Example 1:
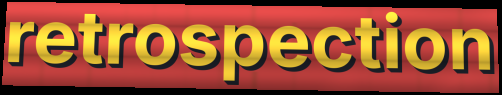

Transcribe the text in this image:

retrospection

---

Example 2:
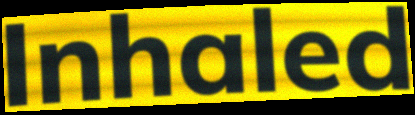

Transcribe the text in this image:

Inhaled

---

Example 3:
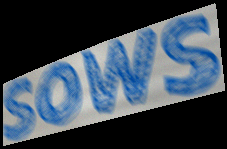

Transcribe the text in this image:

sows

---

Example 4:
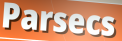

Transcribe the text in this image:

Parsecs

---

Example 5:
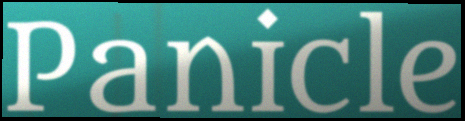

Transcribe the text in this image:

Panicle